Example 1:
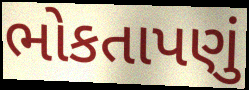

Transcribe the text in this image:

ભોકતાપણું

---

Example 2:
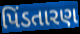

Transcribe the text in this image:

પિંડતારણ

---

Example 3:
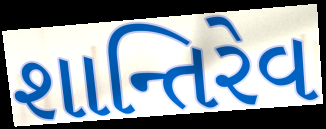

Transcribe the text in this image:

શાન્તિરેવ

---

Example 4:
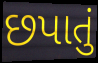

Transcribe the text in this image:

છપાતું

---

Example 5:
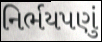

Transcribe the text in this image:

નિર્ભયપણું